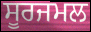
ਸੂਰਜਮਲ